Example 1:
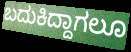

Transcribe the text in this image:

ಬದುಕಿದ್ದಾಗಲೂ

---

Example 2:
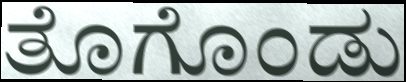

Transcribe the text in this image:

ತೊಗೊಂಡು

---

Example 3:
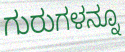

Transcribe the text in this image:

ಗುರುಗಳನ್ನೂ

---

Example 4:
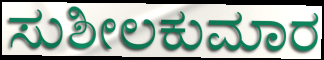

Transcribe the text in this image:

ಸುಶೀಲಕುಮಾರ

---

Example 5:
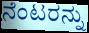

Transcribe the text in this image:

ನೆಂಟರನ್ನು